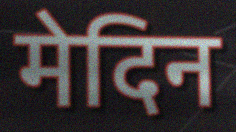
मेदिन